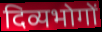
दिव्यभोगों